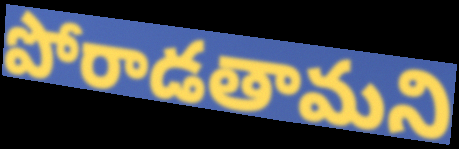
పోరాడతామని